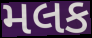
મલક